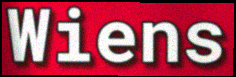
Wiens